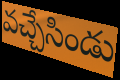
వచ్చేసిండు